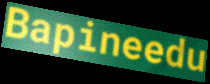
Bapineedu